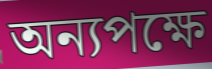
অন্যপক্ষে